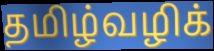
தமிழ்வழிக்